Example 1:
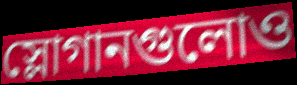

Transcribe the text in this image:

স্লোগানগুলোও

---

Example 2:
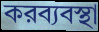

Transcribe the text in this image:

করব্যবস্থা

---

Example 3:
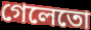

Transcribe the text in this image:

গেলেতো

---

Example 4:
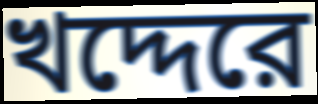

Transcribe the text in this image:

খদ্দেরে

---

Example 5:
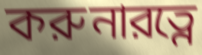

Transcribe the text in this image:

করুনারত্নে